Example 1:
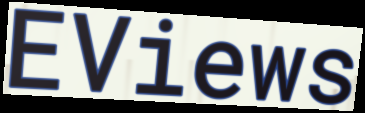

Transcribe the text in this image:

EViews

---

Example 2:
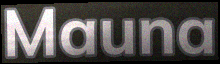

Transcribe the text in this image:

Mauna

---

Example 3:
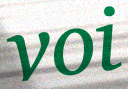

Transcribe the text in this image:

voi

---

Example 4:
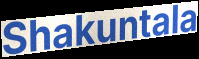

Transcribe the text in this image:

Shakuntala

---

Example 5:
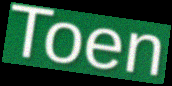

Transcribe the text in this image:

Toen